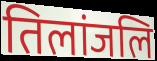
तिलांजलि